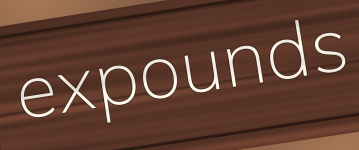
expounds